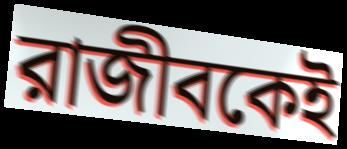
রাজীবকেই